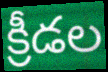
క్రీడల